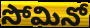
సోమినో